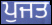
ਪੁਜਤ